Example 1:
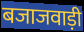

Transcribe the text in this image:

बजाजवाड़ी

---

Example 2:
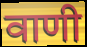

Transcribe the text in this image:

वाणी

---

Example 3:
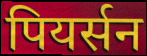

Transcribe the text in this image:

पियर्सन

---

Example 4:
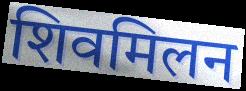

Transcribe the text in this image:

शिवमिलन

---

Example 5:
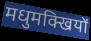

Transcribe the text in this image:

मधुमक्खियों